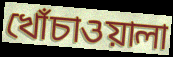
খোঁচাওয়ালা